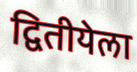
द्वितीयेला